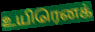
உயிரெனக்